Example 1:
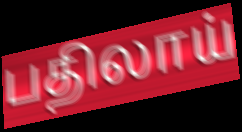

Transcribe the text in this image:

பதிலாய்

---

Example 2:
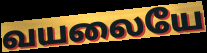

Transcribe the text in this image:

வயலையே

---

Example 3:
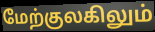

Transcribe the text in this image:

மேற்குலகிலும்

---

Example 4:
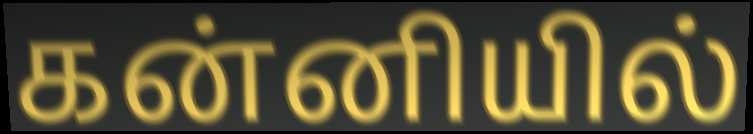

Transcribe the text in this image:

கன்னியில்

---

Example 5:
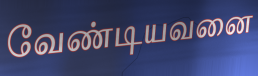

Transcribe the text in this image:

வேண்டியவனை